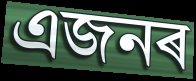
এজনৰ